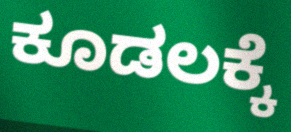
ಕೂಡಲಕ್ಕೆ